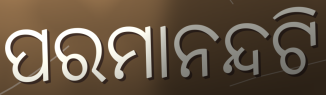
ପରମାନନ୍ଦଟି